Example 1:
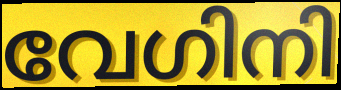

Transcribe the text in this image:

വേഗിനി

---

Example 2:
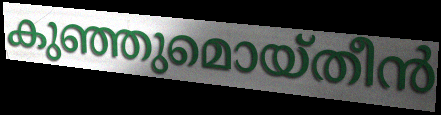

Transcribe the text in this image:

കുഞ്ഞുമൊയ്തീൻ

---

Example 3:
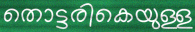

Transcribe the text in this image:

തൊട്ടരികെയുള്ള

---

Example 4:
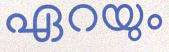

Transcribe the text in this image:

ഏറയും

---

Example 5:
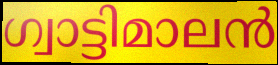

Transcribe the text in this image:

ഗ്വാട്ടിമാലൻ